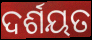
ଦର୍ଶୟତ